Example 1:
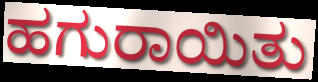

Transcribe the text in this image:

ಹಗುರಾಯಿತು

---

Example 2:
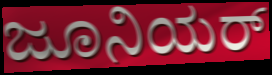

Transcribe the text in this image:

ಜೂನಿಯರ್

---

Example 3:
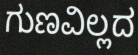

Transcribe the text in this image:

ಗುಣವಿಲ್ಲದ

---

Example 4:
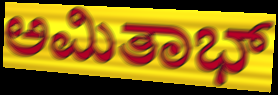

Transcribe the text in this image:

ಅಮಿತಾಭ್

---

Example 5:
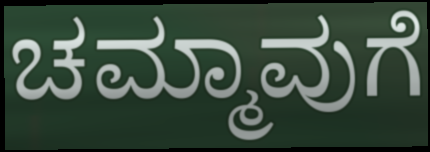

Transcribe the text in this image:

ಚಮ್ಮಾವುಗೆ